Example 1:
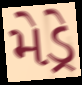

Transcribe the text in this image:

મેડ્રે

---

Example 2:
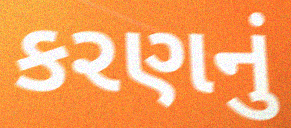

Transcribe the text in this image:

કરણનું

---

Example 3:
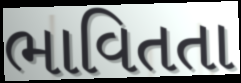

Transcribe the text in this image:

ભાવિતતા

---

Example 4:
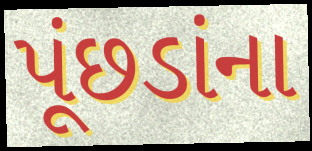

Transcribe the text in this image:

પૂંછડાંના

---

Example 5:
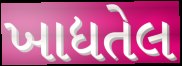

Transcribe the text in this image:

ખાદ્યતેલ